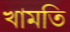
খামতি